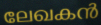
ലേഖകൻ